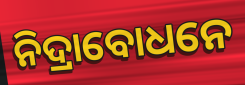
ନିଦ୍ରାବୋଧନେ